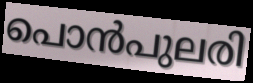
പൊൻപുലരി